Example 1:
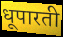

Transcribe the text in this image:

धूपारती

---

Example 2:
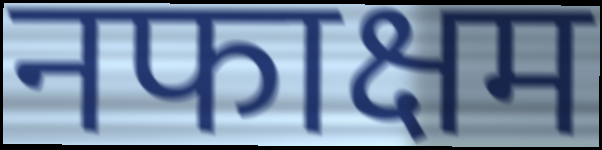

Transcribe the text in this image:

नफाक्षम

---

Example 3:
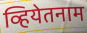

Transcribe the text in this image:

व्हियेतनाम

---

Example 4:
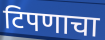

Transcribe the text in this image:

टिपणाचा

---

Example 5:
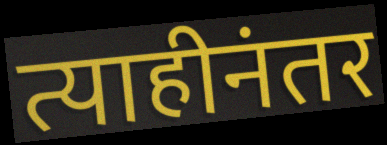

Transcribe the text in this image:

त्याहीनंतर